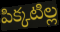
పిక్కటిల్ల